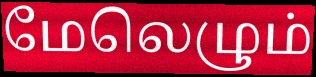
மேலெழும்